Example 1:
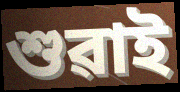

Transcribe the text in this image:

শুৱাই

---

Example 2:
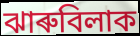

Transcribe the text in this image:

ঝাৰুবিলাক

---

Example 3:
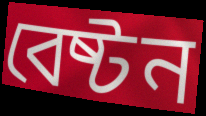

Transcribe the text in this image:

বেষ্টন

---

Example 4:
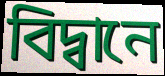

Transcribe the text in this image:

বিদ্বানে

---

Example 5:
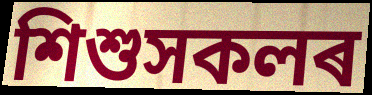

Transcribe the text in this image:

শিশুসকলৰ